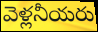
వెళ్లనీయరు